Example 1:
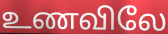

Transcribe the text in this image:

உணவிலே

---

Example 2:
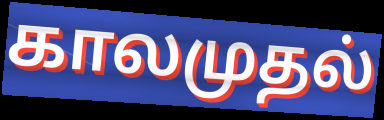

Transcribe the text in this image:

காலமுதல்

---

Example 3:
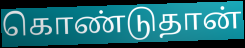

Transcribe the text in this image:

கொண்டுதான்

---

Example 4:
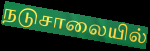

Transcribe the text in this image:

நடுசாலையில்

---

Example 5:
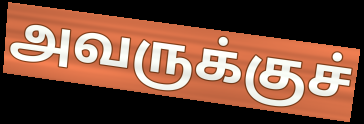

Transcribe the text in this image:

அவருக்குச்